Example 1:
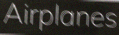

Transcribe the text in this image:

Airplanes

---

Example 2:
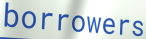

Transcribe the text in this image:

borrowers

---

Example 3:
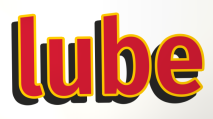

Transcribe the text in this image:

lube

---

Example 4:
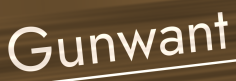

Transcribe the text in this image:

Gunwant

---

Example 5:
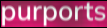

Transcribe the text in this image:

purports